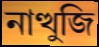
নাত্থুজি